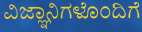
ವಿಜ್ಞಾನಿಗಳೊಂದಿಗೆ